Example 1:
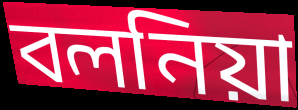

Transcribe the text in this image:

বলনিয়া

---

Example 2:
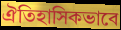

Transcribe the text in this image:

ঐতিহাসিকভাবে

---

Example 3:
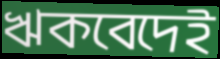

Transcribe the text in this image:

ঋকবেদেই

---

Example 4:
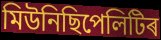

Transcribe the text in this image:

মিউনিছিপেলিটিৰ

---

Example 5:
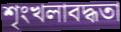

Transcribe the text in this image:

শৃংখলাবদ্ধতা